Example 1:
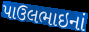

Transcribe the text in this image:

પાઉલભાઇનાં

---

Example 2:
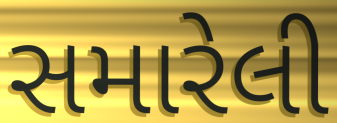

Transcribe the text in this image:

સમારેલી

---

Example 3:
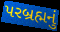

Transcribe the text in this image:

પરબ્રહ્મનું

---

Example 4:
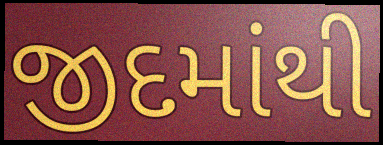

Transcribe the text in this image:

જીદમાંથી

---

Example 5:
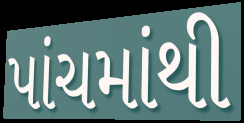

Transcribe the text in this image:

પાંચમાંથી